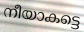
നീയാകട്ടെ